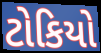
ટોકિયો